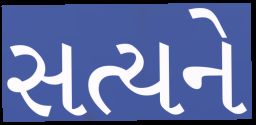
સત્યને